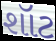
શૉટ